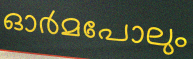
ഓർമപോലും